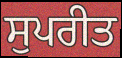
ਸੁਪਰੀਤ